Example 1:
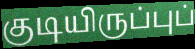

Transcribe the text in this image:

குடியிருப்புப்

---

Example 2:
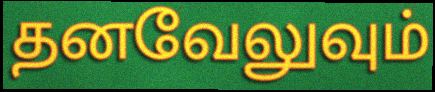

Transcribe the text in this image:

தனவேலுவும்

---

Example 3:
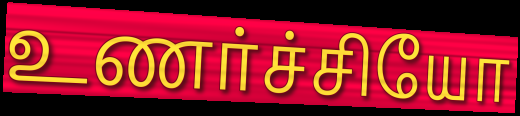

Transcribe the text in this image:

உணர்ச்சியோ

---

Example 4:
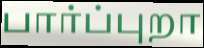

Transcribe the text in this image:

பார்ப்புறா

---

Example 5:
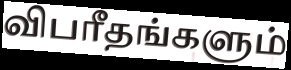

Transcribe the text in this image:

விபரீதங்களும்